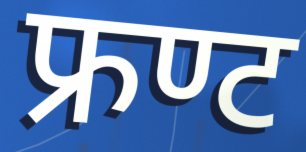
फ्रण्ट